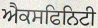
ਐਕਸਫਿਨਿਟੀ